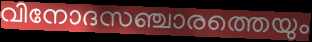
വിനോദസഞ്ചാരത്തെയും